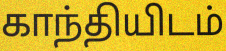
காந்தியிடம்